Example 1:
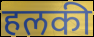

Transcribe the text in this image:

हलकी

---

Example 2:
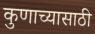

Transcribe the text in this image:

कुणाच्यासाठी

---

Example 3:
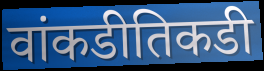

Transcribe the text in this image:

वांकडीतिकडी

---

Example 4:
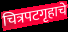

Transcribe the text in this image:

चित्रपटगृहाचे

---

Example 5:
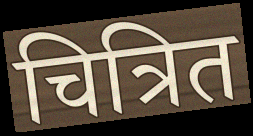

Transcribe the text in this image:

चित्रित